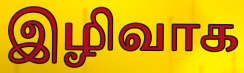
இழிவாக